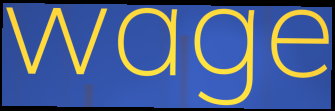
wage